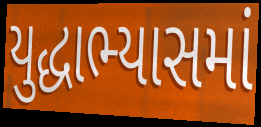
યુદ્ધાભ્યાસમાં